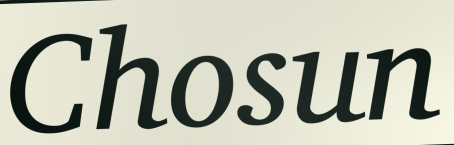
Chosun